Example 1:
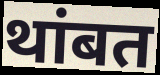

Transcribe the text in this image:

थांबत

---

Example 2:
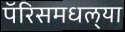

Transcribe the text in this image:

पॅरिसमधल्या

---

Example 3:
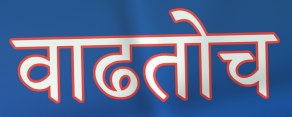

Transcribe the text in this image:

वाढतोच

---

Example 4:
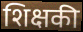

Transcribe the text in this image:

शिक्षकी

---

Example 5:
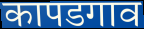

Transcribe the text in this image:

कापडगाव